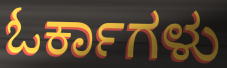
ಓರ್ಕಾಗಳು